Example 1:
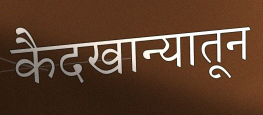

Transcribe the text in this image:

कैदखान्यातून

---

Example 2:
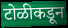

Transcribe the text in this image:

टोळीकडून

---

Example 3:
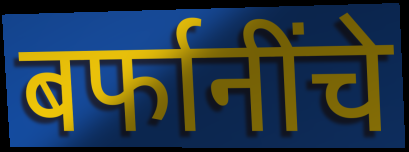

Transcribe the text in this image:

बर्फानींचे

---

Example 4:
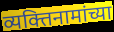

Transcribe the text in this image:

व्यक्तिनामांच्या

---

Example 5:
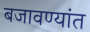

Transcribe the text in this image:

बजावण्यांत